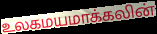
உலகமயமாக்கலின்